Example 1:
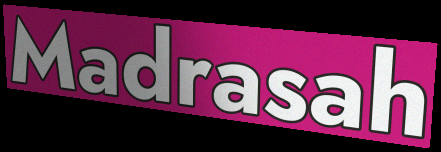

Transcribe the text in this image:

Madrasah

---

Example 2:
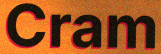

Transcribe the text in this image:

Cram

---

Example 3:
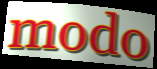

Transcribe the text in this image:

modo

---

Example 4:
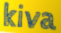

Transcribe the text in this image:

kiva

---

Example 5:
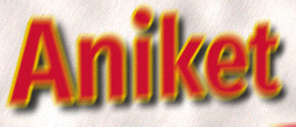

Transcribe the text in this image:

Aniket